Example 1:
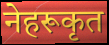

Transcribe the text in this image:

नेहरूकृत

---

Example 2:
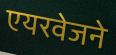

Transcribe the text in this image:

एयरवेजने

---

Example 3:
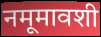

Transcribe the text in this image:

नमूमावशी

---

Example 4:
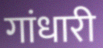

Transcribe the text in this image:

गांधारी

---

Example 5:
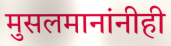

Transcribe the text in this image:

मुसलमानांनीही